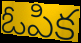
ఓపిక